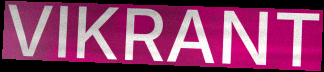
VIKRANT